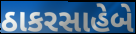
ઠાકરસાહેબે